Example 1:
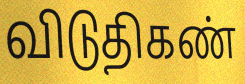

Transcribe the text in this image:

விடுதிகண்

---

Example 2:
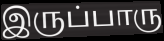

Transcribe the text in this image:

இருப்பாரு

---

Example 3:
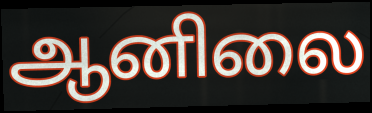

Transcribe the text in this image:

ஆனிலை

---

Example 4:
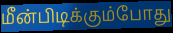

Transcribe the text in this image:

மீன்பிடிக்கும்போது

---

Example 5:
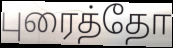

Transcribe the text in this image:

புரைத்தோ